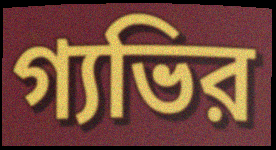
গ্যভির